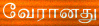
வேரானது